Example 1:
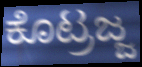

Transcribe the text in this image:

ಕೊಟ್ರಜ್ಜ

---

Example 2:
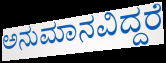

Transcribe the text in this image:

ಅನುಮಾನವಿದ್ದರೆ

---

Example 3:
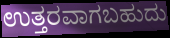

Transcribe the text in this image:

ಉತ್ತರವಾಗಬಹುದು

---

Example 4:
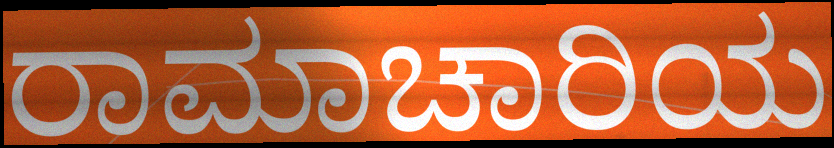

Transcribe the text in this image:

ರಾಮಾಚಾರಿಯ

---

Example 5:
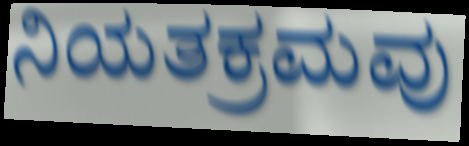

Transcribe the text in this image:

ನಿಯತಕ್ರಮವು